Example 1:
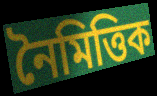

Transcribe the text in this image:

নৈমিত্তিক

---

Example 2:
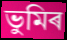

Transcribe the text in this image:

ভুমিৰ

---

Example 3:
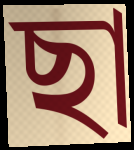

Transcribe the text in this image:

ছা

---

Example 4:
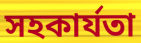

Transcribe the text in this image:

সহকাৰ্যতা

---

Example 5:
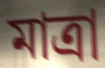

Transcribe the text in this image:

মাত্ৰা